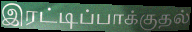
இரட்டிப்பாக்குதல்